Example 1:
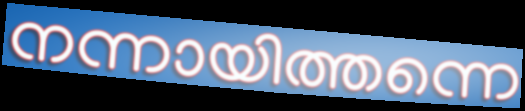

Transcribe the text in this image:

നന്നായിത്തന്നെ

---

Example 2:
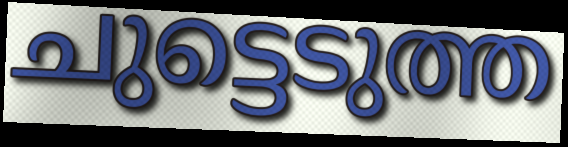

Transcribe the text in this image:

ചുട്ടെടുത്ത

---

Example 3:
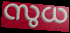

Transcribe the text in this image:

സുധ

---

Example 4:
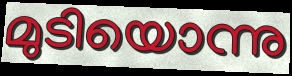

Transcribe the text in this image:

മുടിയൊന്നു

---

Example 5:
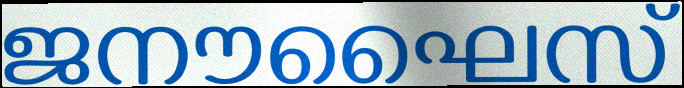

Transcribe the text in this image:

ജനൗഘൈസ്